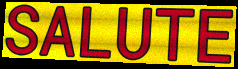
SALUTE